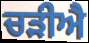
ਚੜੀਐ